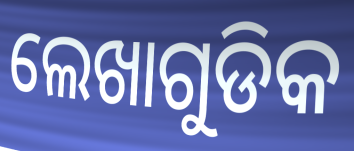
ଲେଖାଗୁଡିକ